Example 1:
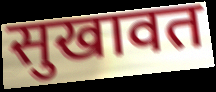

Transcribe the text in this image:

सुखावत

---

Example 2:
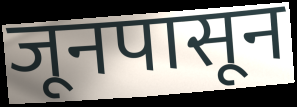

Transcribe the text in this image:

जूनपासून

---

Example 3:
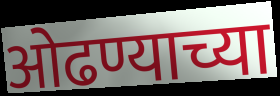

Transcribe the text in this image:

ओढण्याच्या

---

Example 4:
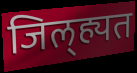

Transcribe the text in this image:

जिल्ह्यत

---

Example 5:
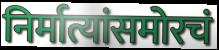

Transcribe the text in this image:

निर्मात्यांसमोरचं